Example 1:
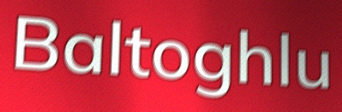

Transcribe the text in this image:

Baltoghlu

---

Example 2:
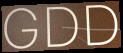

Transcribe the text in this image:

GDD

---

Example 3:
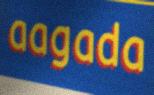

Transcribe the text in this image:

aagada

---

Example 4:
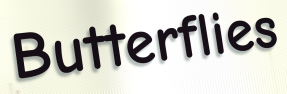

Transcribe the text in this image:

Butterflies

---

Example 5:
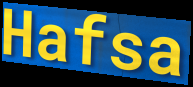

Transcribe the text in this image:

Hafsa